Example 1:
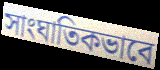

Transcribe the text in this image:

সাংঘাতিকভাবে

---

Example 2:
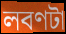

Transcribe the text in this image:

লবণটা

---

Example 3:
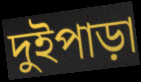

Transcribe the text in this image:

দুইপাড়া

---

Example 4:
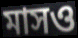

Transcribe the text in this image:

মাসও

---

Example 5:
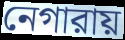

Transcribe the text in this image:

নেগারায়